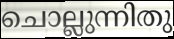
ചൊല്ലുന്നിതു